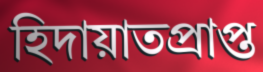
হিদায়াতপ্রাপ্ত